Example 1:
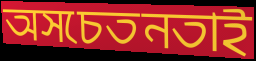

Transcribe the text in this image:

অসচেতনতাই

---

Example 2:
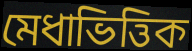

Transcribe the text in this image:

মেধাভিত্তিক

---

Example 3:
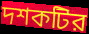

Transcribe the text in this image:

দশকটির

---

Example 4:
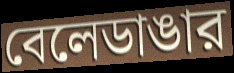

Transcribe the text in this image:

বেলেডাঙার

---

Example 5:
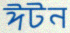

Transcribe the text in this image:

ঈটন